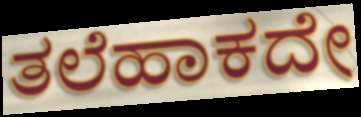
ತಲೆಹಾಕದೇ